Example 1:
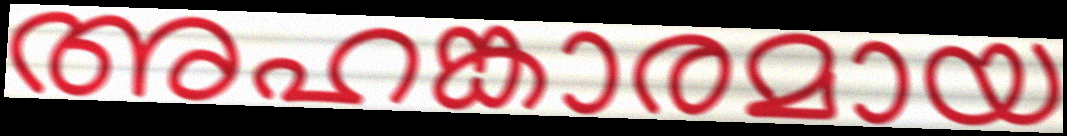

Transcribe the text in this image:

അഹങ്കാരമായ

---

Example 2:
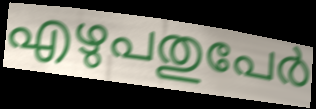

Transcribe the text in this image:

എഴുപതുപേർ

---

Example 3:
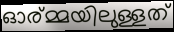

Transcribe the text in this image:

ഓര്മ്മയിലുള്ളത്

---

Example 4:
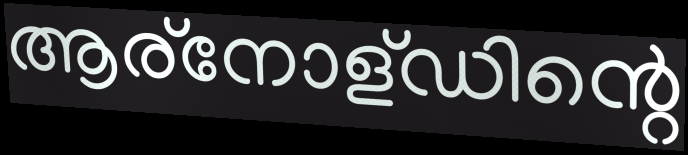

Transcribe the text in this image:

ആര്നോള്ഡിന്റെ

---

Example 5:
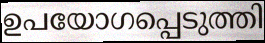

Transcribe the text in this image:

ഉപയോഗപ്പെടുത്തി